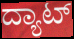
ದ್ಯಾಟ್